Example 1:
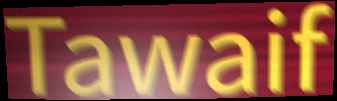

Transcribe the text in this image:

Tawaif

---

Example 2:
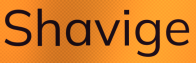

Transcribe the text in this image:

Shavige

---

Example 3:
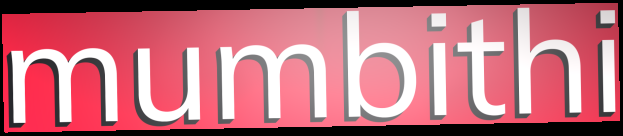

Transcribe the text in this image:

mumbithi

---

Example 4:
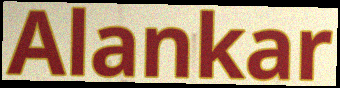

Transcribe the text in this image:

Alankar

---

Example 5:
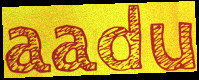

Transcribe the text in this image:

aadu